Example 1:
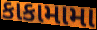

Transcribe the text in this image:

કાકામામા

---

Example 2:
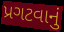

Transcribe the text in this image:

પ્રગટવાનું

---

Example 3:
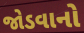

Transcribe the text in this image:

જોડવાનો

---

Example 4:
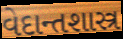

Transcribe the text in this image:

વેદાન્તશાસ્ત્ર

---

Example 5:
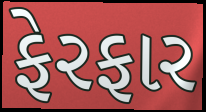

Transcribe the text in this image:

ફેરફાર